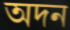
অদন